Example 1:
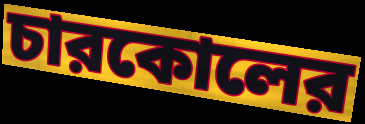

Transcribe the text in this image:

চারকোলের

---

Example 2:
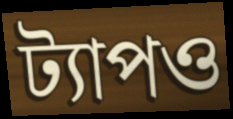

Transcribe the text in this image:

ট্যাপও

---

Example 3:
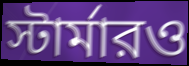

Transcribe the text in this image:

স্টার্মারও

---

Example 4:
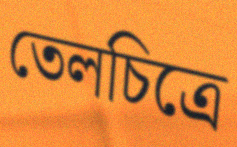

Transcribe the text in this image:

তেলচিত্রে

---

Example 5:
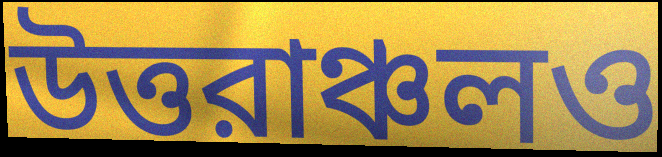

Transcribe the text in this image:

উত্তরাঞ্চলও